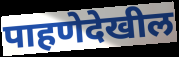
पाहणेदेखील